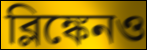
ব্লিঙ্কেনও